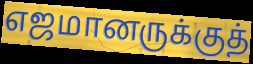
எஜமானருக்குத்